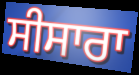
ਸੀਸਾਰਾ